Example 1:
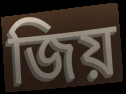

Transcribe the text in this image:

জিয়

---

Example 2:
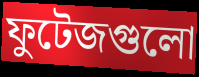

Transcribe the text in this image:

ফুটেজগুলো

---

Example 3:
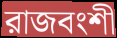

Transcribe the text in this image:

রাজবংশী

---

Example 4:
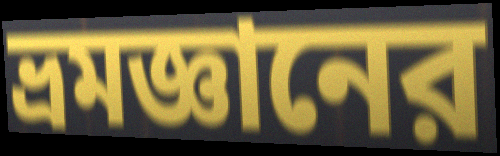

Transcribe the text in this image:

ভ্রমজ্ঞানের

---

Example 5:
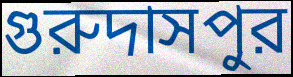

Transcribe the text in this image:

গুরুদাসপুর